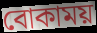
বোকাময়